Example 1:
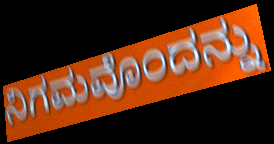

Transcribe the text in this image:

ನಿಗಮವೊಂದನ್ನು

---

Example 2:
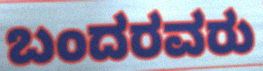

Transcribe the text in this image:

ಬಂದರವರು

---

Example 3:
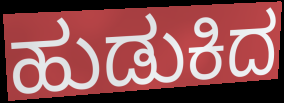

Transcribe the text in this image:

ಹುಡುಕಿದ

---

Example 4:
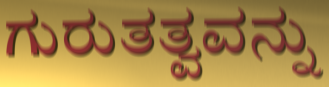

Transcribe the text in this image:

ಗುರುತತ್ವವನ್ನು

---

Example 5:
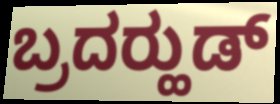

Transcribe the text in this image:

ಬ್ರದರ್‍ಹುಡ್